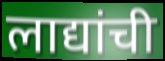
लाद्यांची